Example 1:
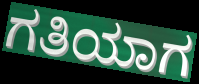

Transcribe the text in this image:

ಗತಿಯಾಗ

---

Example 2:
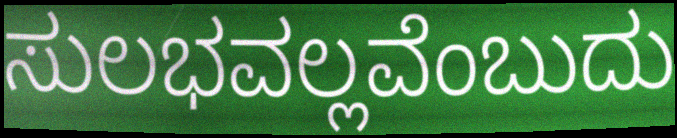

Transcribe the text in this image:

ಸುಲಭವಲ್ಲವೆಂಬುದು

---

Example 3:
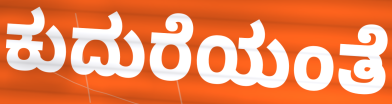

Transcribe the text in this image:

ಕುದುರೆಯಂತೆ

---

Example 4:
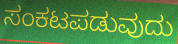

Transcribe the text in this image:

ಸಂಕಟಪಡುವುದು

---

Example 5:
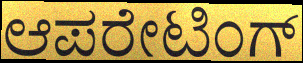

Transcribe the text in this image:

ಆಪರೇಟಿಂಗ್